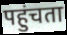
पहुंचता